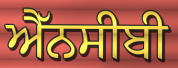
ਐੱਨਸੀਬੀ